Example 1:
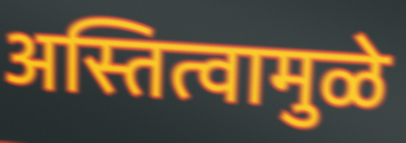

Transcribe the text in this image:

अस्तित्वामुळे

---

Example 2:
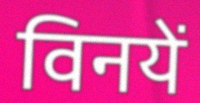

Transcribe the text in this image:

विनयें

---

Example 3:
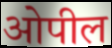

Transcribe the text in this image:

ओपील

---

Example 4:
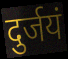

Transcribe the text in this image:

दुर्जयं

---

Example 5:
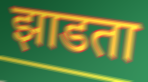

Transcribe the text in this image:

झाडता